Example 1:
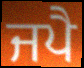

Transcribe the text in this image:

ਜਪੈ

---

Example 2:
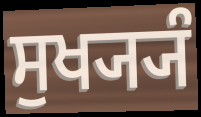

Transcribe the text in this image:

ਸੁਖ੍ਯ੍ਯੰ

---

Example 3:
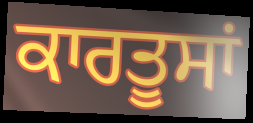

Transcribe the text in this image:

ਕਾਰਤੂਸਾਂ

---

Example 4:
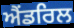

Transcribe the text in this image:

ਐਂਡਰਿਲ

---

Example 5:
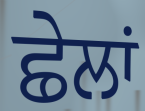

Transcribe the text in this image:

ਛੇਲਾਂ